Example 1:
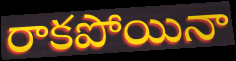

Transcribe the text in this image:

రాకపోయినా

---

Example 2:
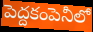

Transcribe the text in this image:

పెద్దకంపెనీలో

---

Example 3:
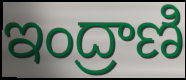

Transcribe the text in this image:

ఇంద్రాణి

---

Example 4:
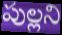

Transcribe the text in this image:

పుల్లని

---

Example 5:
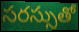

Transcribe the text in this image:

సరస్సుతో